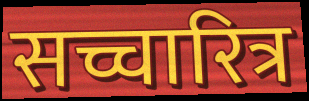
सच्चारित्र